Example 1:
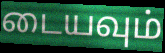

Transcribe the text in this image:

டையவும்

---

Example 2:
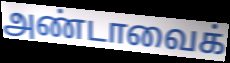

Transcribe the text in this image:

அண்டாவைக்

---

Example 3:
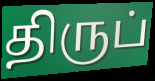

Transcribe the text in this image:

திருப்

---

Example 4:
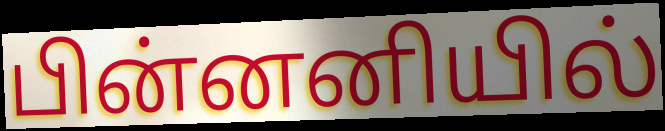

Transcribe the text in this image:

பின்னனியில்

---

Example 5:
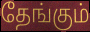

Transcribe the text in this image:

தேங்கும்